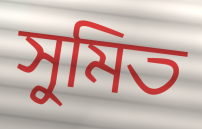
সুমিত